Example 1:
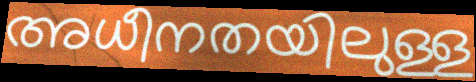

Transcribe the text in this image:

അധീനതയിലുള്ള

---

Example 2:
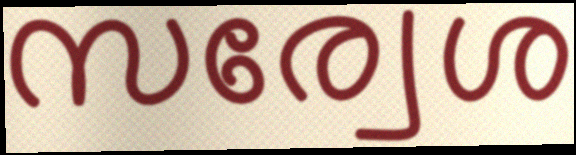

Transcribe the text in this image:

സര്വേശ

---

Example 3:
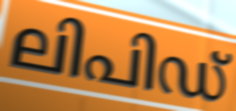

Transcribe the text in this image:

ലിപിഡ്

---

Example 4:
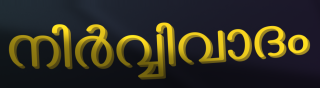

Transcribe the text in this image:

നിർവ്വിവാദം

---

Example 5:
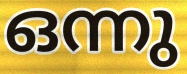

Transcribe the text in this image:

ഒന്നു